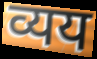
व्यय